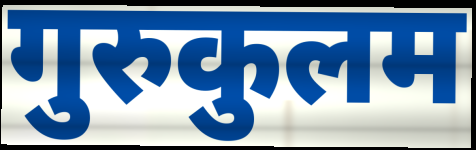
गुरुकुलम